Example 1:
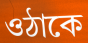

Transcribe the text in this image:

ওঠাকে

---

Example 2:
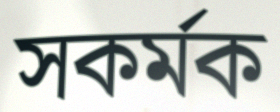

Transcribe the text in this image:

সকর্মক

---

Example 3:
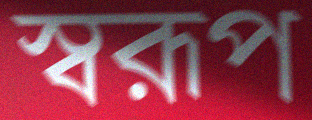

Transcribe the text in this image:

স্বরূপ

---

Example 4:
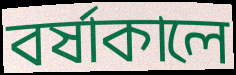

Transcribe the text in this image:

বর্ষাকালে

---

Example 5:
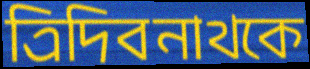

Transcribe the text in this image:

ত্রিদিবনাথকে